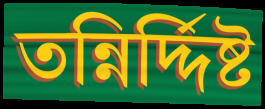
তন্নির্দ্দিষ্ট